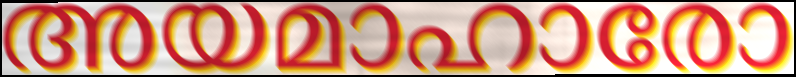
അയമാഹാരോ